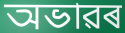
অভাৱৰ